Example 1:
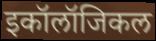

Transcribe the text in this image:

इकॉलॉजिकल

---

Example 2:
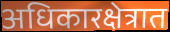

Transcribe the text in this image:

अधिकारक्षेत्रात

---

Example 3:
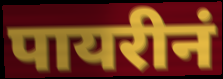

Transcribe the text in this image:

पायरीनं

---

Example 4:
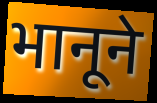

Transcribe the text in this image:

भानूने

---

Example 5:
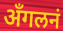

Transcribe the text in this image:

अँगलनं